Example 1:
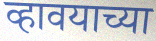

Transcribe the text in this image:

व्हावयाच्या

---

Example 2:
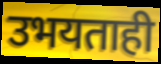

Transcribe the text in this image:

उभयताही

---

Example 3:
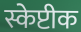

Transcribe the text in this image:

स्केप्टीक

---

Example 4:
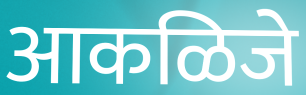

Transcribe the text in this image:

आकळिजे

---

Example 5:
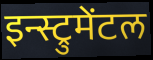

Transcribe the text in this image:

इन्स्ट्रुमेंटल